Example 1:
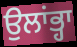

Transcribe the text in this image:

ਉਲਾਂਭ੍ਹਾ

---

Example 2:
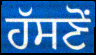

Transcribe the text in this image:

ਹੱਸਣੋਂ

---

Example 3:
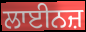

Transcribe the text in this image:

ਲਾਈਨਜ਼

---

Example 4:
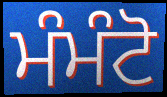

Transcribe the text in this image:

ਮੰਮੰਟੋ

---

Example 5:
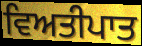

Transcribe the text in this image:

ਵਿਅਤੀਪਾਤ